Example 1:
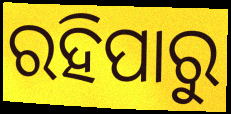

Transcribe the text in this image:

ରହିପାରୁ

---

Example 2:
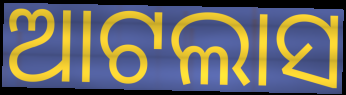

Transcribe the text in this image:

ଆଟଲାସ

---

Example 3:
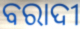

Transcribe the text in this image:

ବରାଦୀ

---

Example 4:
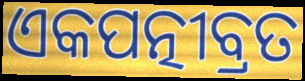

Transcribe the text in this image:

ଏକପତ୍ନୀବ୍ରତ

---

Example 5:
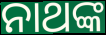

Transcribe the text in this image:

ନାଥଙ୍କ